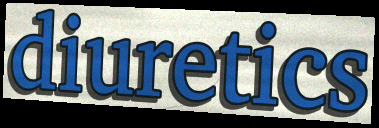
diuretics